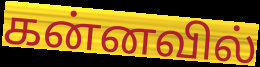
கன்னவில்